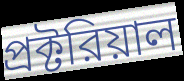
প্রক্টরিয়াল